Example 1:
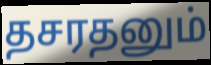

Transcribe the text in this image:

தசரதனும்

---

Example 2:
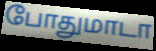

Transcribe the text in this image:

போதுமாடா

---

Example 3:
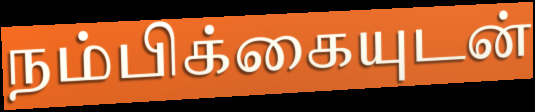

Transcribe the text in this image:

நம்பிக்கையுடன்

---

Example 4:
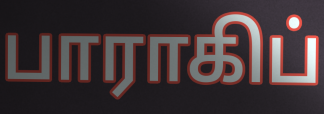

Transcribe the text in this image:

பாராகிப்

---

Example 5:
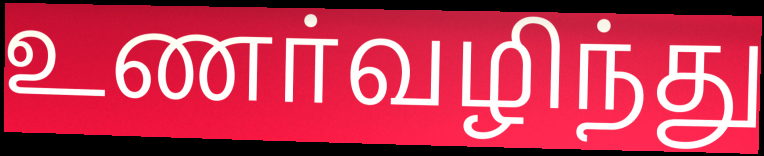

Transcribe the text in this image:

உணர்வழிந்து